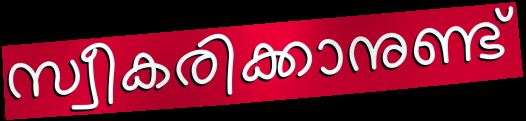
സ്വീകരിക്കാനുണ്ട്